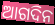
ଆଗଦିନ